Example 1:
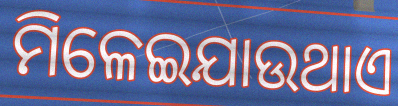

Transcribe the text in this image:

ମିଳେଇଯାଉଥାଏ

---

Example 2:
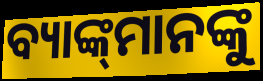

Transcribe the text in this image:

ବ୍ୟାଙ୍କ୍‌ମାନଙ୍କୁ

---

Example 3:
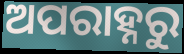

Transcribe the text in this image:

ଅପରାହ୍ନରୁ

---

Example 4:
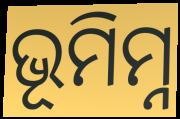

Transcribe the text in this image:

ଭୂମିମ୍ନ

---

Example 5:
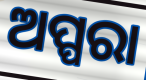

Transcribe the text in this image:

ଅପ୍ପରା